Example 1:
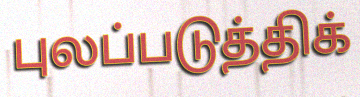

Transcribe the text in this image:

புலப்படுத்திக்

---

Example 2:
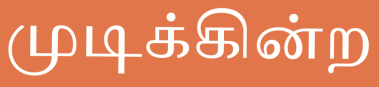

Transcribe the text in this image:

முடிக்கின்ற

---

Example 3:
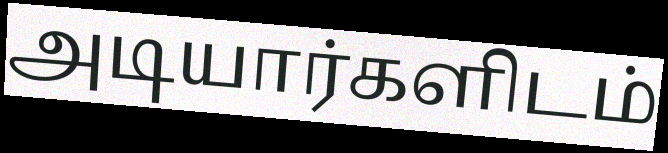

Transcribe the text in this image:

அடியார்களிடம்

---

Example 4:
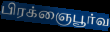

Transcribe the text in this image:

பிரக்ஞைபூர்வ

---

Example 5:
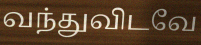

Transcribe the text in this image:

வந்துவிடவே